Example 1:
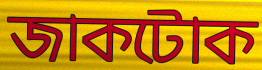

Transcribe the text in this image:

জাকটোক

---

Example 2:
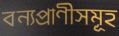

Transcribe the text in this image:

বন্যপ্ৰাণীসমূহ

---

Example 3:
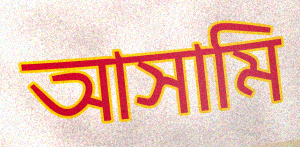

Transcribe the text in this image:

আসামি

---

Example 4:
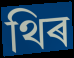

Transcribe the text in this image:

থিৰ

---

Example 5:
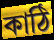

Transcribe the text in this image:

কাঠি